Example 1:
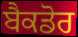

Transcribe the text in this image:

ਬੈਕਡੋਰ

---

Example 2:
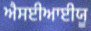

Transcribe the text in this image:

ਐਸਈਆਈਯੂ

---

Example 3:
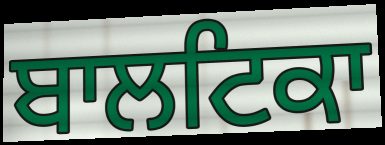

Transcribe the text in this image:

ਬਾਲਟਿਕਾ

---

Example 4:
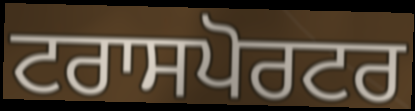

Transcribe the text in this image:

ਟਰਾਸਪੋਰਟਰ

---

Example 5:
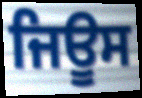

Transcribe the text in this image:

ਜਿਊਸ